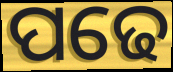
ପଢେ